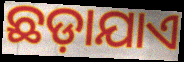
ଛଡ଼ାଯାଏ